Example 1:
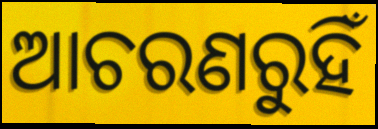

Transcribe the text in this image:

ଆଚରଣରୁହିଁ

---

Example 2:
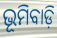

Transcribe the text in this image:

ଭୂମିବାଡ଼ି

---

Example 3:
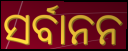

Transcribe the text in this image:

ସର୍ବାନନ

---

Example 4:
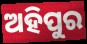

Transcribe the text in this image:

ଅହିପୁର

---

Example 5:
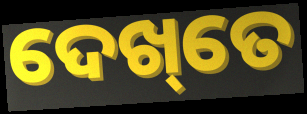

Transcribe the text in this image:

ଦେଖ୍‌ତେ